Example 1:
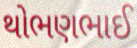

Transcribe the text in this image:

થોભણભાઈ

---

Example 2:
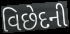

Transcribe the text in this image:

વિછેદની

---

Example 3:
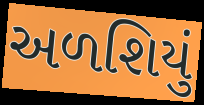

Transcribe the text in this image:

અળશિયું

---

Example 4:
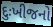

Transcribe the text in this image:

દુઃખીજનો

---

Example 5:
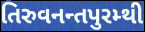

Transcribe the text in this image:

તિરુવનન્તપુરમ્થી